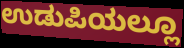
ಉಡುಪಿಯಲ್ಲೂ